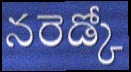
నరెడ్కో